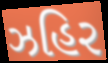
ઝહિર